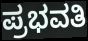
ಪ್ರಭವತಿ